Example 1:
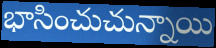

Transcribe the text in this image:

భాసించుచున్నాయి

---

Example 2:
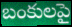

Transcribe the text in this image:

బంకులపై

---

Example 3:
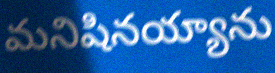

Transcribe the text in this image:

మనిషినయ్యాను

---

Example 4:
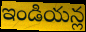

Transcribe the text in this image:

ఇండియన్ల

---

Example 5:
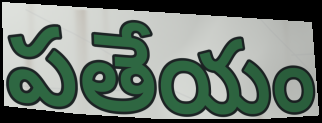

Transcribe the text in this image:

పతేయం